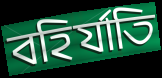
বহির্যাতি